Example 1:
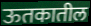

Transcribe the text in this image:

ऊतकातील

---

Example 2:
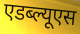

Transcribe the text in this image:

एडब्ल्यूएस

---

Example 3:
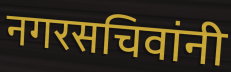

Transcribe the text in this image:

नगरसचिवांनी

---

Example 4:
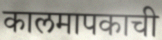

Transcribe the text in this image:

कालमापकाची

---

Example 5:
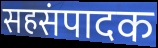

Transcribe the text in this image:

सहसंपादक